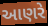
આણરે